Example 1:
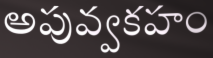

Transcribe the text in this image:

అపువ్వకహం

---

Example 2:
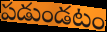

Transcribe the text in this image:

పడుండటం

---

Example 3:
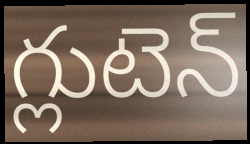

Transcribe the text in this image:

గ్లుటెన్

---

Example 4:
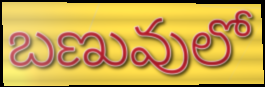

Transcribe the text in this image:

బణువులో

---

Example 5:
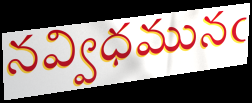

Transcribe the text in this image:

నవ్విధమునఁ